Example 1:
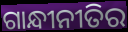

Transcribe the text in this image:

ଗାନ୍ଧୀନୀତିର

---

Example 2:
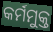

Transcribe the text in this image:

କର୍ମମୁକ୍ତ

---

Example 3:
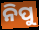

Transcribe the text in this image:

ନିପୁ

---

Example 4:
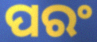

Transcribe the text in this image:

ପରଂ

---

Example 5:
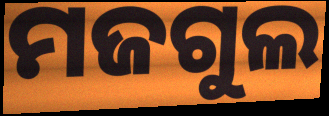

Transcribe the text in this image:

ମଜଗୁଲ